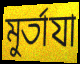
মুর্তাযা